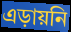
এড়ায়নি